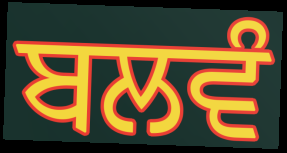
ਬਲਵੰ